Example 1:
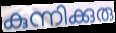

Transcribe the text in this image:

കുന്നിക്കുരു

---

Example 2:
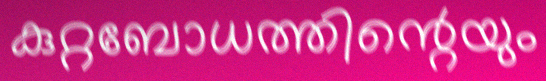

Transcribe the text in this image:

കുറ്റബോധത്തിന്റെയും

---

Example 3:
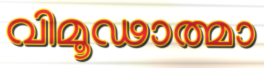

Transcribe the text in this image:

വിമൂഢാത്മാ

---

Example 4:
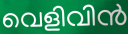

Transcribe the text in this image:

വെളിവിൻ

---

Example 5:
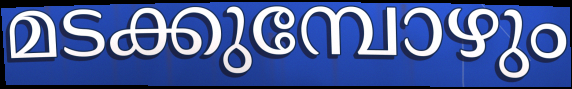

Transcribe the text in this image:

മടക്കുമ്പോഴും